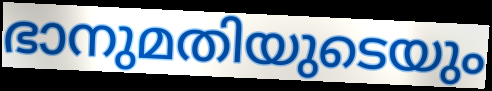
ഭാനുമതിയുടെയും